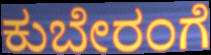
ಕುಬೇರಂಗೆ